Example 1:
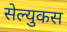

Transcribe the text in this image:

सेल्युकस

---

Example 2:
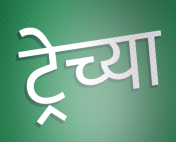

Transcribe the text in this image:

ट्रेच्या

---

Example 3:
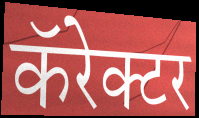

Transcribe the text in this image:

कॅरेक्टर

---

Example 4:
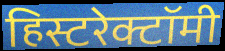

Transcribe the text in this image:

हिस्टरेक्टॉमी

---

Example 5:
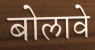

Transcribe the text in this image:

बोलावे